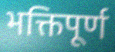
भक्तिपूर्ण